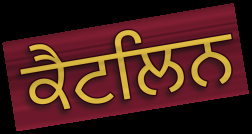
ਕੈਟਲਿਨ